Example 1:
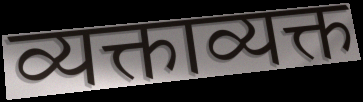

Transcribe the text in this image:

व्यक्ताव्यक्त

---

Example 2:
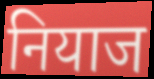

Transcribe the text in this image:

नियाज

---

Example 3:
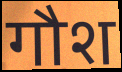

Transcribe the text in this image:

गौश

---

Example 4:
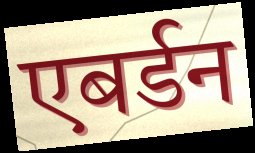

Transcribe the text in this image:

एबर्डन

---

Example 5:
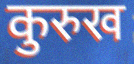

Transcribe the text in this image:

कुरुख